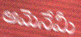
ఆమెనేమీ